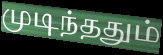
முடிந்ததும்